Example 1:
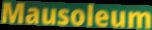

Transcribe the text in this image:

Mausoleum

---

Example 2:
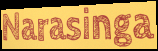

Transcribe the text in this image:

Narasinga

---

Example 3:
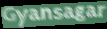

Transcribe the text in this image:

Gyansagar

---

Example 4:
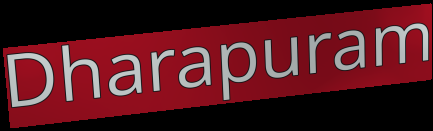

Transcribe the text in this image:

Dharapuram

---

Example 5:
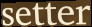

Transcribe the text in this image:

setter